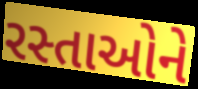
રસ્તાઓને